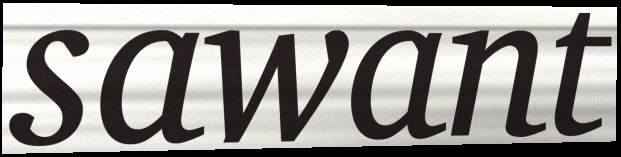
sawant